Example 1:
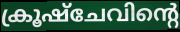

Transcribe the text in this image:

ക്രൂഷ്ചേവിന്റെ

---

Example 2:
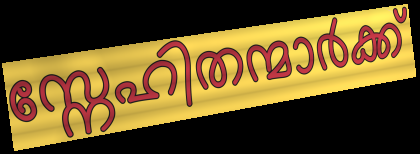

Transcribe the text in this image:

സ്നേഹിതന്മാർക്ക്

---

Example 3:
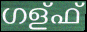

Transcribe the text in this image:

ഗള്ഫ്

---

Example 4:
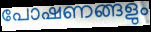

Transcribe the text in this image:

പോഷണങ്ങളും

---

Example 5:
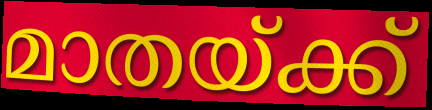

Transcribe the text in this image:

മാതയ്ക്ക്